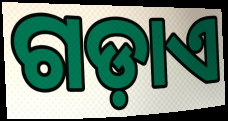
ଗଡ଼ାଏ